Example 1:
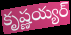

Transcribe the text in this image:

కృష్ణయ్యర్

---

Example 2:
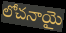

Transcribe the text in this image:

లోచనాయై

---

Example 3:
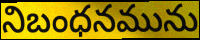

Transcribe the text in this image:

నిబంధనమును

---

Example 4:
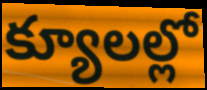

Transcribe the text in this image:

క్యూలల్లో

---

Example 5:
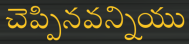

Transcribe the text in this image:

చెప్పినవన్నియు